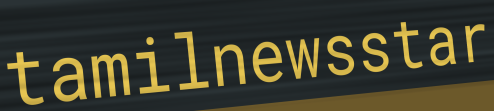
tamilnewsstar